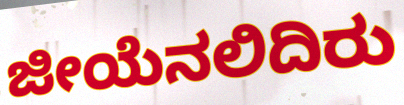
ಜೀಯೆನಲಿದಿರು